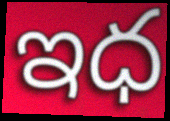
ఇధ